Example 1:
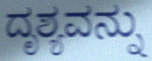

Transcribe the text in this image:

ದೃಶ್ಯವನ್ನು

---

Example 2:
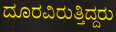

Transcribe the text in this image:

ದೂರವಿರುತ್ತಿದ್ದರು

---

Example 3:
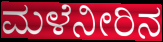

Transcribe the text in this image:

ಮಳೆನೀರಿನ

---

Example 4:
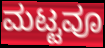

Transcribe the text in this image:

ಮಟ್ಟವೂ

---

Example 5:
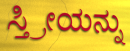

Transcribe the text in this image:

ಸ್ತ್ರೀಯನ್ನು